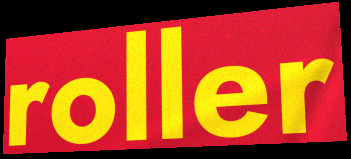
roller